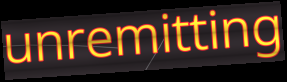
unremitting